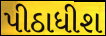
પીઠાધીશ